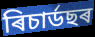
ৰিচাৰ্ডছৰ